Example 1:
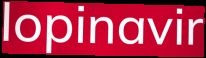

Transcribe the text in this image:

lopinavir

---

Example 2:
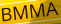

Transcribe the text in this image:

BMMA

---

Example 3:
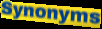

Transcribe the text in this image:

Synonyms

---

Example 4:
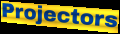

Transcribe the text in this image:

Projectors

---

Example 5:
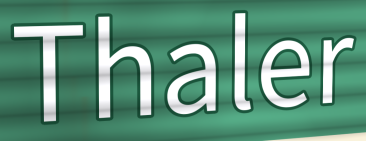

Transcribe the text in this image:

Thaler